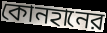
কোনহানের